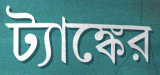
ট্যাঙ্কের